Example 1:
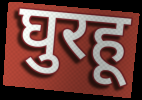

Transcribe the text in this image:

घुरहू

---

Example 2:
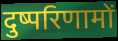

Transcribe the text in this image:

दुष्परिणामों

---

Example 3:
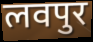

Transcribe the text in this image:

लवपुर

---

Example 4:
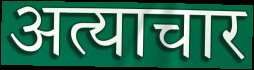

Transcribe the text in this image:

अत्‍याचार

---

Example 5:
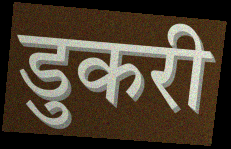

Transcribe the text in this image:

डुकरी